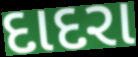
દાદરા